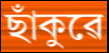
ছাঁকুৱে